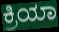
ಕ್ರಿಯಾ